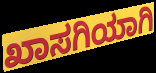
ಖಾಸಗಿಯಾಗಿ